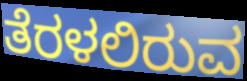
ತೆರಳಲಿರುವ